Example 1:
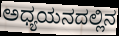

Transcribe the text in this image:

ಅಧ್ಯಯನದಲ್ಲಿನ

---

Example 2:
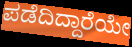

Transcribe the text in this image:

ಪಡೆದಿದ್ದಾರೆಯೇ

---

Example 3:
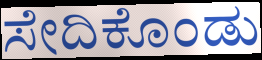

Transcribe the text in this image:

ಸೇದಿಕೊಂಡು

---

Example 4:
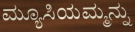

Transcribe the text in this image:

ಮ್ಯೂಸಿಯಮ್ಮನ್ನು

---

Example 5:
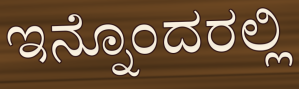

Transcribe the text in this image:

ಇನ್ನೊಂದರಲ್ಲಿ